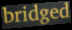
bridged